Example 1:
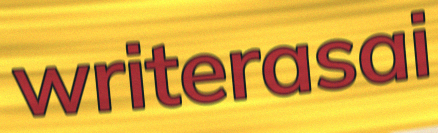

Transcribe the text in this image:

writerasai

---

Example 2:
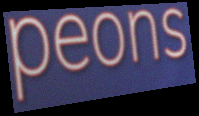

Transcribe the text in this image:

peons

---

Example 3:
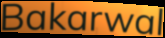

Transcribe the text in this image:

Bakarwal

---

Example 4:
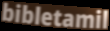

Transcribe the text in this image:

bibletamil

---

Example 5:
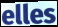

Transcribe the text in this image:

elles